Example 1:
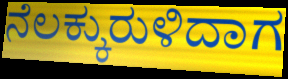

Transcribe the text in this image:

ನೆಲಕ್ಕುರುಳಿದಾಗ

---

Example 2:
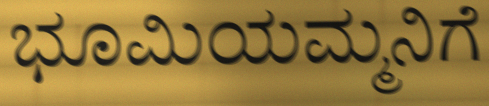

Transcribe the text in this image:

ಭೂಮಿಯಮ್ಮನಿಗೆ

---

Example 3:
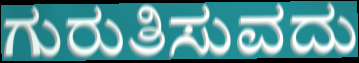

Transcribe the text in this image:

ಗುರುತಿಸುವದು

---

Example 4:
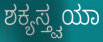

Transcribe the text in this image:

ಶಕ್ಯಸ್ತ್ವಯಾ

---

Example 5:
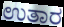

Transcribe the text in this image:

ಉತಾರ